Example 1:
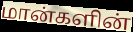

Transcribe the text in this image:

மான்களின்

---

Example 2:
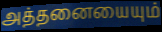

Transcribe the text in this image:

அத்தனையையும்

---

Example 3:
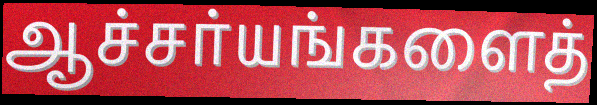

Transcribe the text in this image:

ஆச்சர்யங்களைத்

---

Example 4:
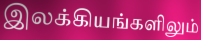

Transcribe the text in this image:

இலக்கியங்களிலும்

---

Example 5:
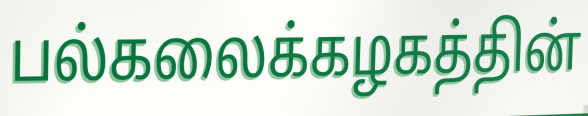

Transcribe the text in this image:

பல்கலைக்கழகத்தின்